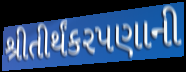
શ્રીતીર્થંકરપણાની